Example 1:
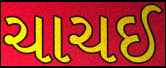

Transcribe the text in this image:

ચાચઈ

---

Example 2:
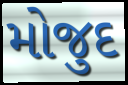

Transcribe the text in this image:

મોજુદ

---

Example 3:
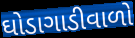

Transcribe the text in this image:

ઘોડાગાડીવાળો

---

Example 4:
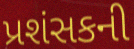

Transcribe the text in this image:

પ્રશંસકની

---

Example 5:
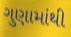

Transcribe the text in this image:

ગુણામાંથી